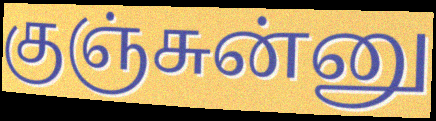
குஞ்சுன்னு